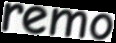
remo